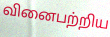
வினைபற்றிய